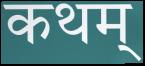
कथम्